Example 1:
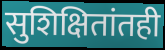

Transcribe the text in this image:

सुशिक्षितांतही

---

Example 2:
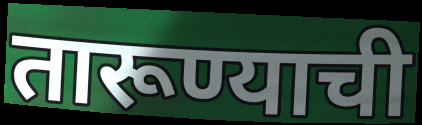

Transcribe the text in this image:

तारूण्याची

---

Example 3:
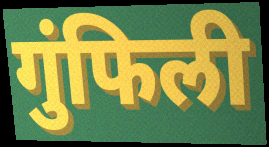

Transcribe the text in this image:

गुंफिली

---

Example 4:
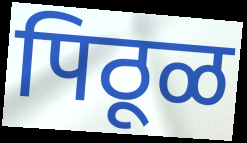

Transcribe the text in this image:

पिठूळ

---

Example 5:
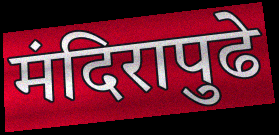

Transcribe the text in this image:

मंदिरापुढे